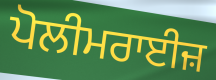
ਪੋਲੀਮਰਾਈਜ਼